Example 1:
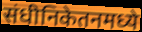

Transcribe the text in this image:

संधीनिकेतनमध्ये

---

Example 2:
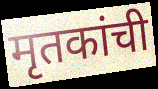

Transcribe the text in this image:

मृतकांची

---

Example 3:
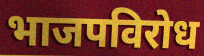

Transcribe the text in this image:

भाजपविरोध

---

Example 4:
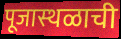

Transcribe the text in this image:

पूजास्थळाची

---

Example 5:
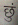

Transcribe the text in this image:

छुं